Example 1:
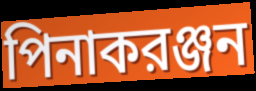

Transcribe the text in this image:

পিনাকরঞ্জন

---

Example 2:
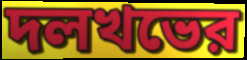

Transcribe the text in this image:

দলখভের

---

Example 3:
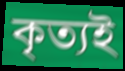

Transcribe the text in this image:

কৃত্যই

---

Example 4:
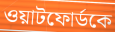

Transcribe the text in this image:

ওয়াটফোর্ডকে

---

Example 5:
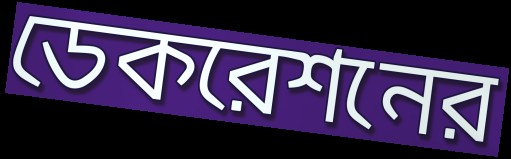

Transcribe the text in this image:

ডেকরেশনের